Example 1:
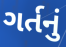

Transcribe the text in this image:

ગર્તનું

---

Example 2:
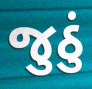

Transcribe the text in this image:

જુઠું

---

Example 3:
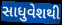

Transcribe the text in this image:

સાધુવેશથી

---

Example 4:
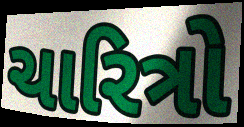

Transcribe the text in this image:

ચારિત્રો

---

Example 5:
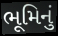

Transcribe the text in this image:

ભૂમિનું